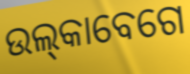
ଉଲ୍‌କାବେଗେ